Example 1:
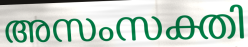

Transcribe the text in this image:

അസംസക്തി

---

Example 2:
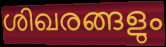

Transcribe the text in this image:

ശിഖരങ്ങളും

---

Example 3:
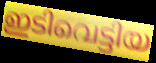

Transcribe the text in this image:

ഇടിവെട്ടിയ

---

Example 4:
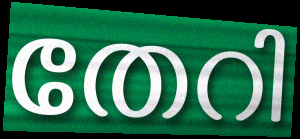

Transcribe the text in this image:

തേറി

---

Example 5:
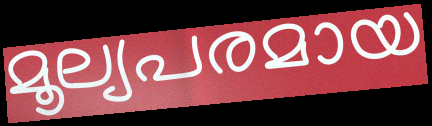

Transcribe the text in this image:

മൂല്യപരമായ